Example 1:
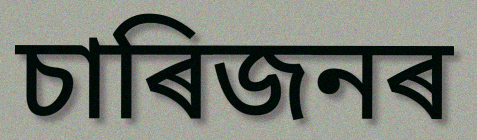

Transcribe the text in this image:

চাৰিজনৰ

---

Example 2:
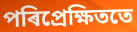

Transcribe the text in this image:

পৰিপ্ৰেক্ষিততে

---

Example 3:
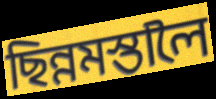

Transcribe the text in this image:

ছিন্নমস্তালৈ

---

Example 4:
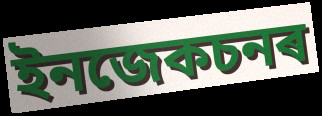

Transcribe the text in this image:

ইনজেকচনৰ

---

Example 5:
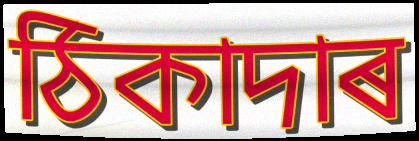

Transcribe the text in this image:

ঠিকাদাৰ